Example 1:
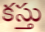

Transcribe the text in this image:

కస్తు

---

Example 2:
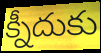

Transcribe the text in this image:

క్నీదుకు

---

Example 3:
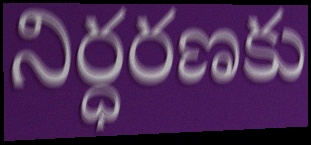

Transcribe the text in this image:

నిర్ధరణకు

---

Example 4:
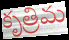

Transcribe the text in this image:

కృత్రిమ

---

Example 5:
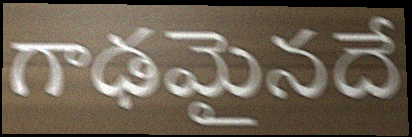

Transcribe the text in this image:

గాఢమైనదే